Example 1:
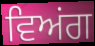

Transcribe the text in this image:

ਵਿਅਂਗ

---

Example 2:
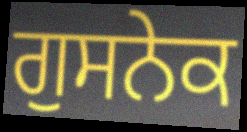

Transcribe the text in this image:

ਗੁਸਨੇਕ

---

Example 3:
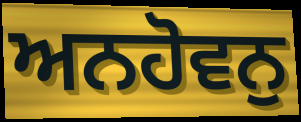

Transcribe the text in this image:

ਅਨਹੋਵਨੁ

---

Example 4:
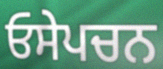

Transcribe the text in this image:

ਓਸੇਪਚਨ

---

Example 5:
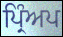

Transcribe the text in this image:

ਪ੍ਰਿੰਅਪ